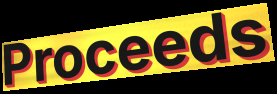
Proceeds